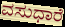
ವಸುಧಾರೆ